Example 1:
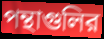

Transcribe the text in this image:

পন্থাগুলির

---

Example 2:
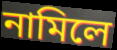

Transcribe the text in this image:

নামিলে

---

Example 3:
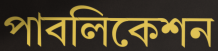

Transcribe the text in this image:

পাবলিকেশন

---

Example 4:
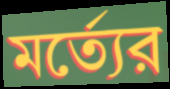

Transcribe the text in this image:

মর্ত্যের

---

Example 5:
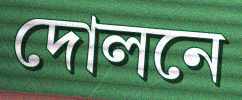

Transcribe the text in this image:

দোলনে